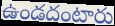
ఉండదంటారు